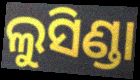
ଲୁସିଣ୍ଡା